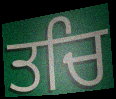
ਤਚਿ